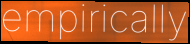
empirically